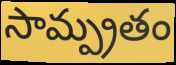
సామ్ప్రతం